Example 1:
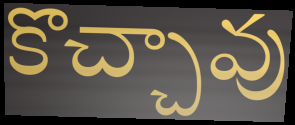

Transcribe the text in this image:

కొచ్చావు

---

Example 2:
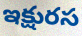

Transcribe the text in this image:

ఇక్షురస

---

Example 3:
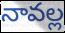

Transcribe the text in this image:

నావల్ల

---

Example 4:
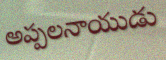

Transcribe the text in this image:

అప్పలనాయుడు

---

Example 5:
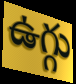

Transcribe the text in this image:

ఉగ్గు